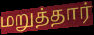
மறுத்தார்